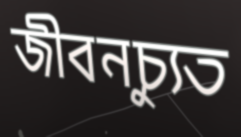
জীবনচ্যুত